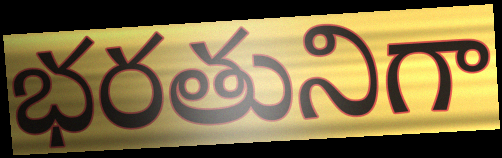
భరతునిగా